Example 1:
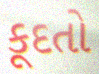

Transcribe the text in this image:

કૂદતો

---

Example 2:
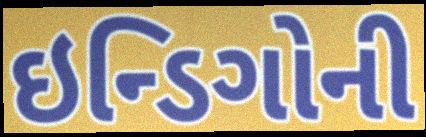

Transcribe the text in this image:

ઇન્ડિગોની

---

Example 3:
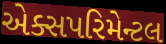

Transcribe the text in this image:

એક્સપરિમેન્ટલ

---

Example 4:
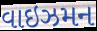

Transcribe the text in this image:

વાઇઝમન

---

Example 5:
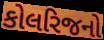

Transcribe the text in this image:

કોલરિજનો